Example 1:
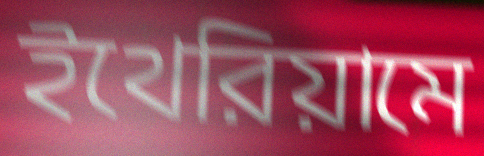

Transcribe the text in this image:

ইথেরিয়ামে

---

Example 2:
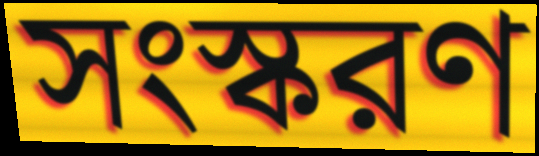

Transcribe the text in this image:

সংস্করণ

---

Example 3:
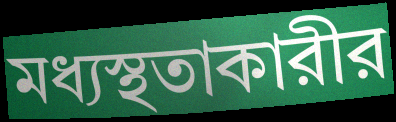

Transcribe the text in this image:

মধ্যস্থতাকারীর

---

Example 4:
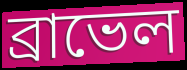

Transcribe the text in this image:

ব্রাভেল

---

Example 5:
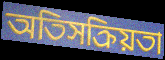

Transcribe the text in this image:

অতিসক্রিয়তা